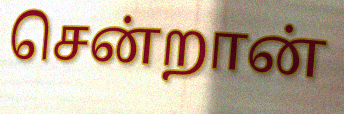
சென்றான்